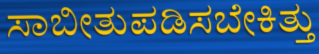
ಸಾಬೀತುಪಡಿಸಬೇಕಿತ್ತು